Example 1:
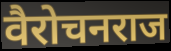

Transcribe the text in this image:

वैरोचनराज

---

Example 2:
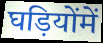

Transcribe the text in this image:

घड़ियोंमें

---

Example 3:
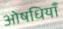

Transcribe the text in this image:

ओषधियाँ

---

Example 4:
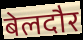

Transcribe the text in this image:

बेलदौर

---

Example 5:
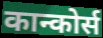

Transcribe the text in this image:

कान्कोर्स